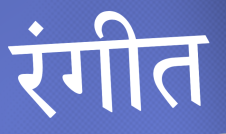
रंगीत